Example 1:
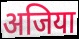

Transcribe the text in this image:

अजिया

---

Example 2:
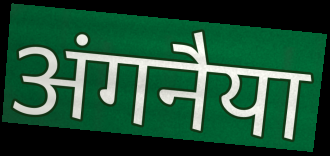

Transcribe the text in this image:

अंगनैया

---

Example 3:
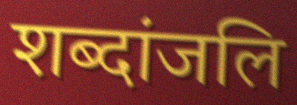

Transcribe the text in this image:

शब्दांजलि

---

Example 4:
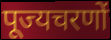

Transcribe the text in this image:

पूज्यचरणों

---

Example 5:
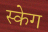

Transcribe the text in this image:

स्केग